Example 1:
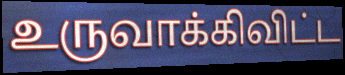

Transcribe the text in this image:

உருவாக்கிவிட்ட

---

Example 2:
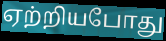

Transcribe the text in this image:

ஏற்றியபோது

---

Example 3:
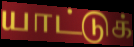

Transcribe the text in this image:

யாட்டுக்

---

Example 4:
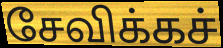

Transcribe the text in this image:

சேவிக்கச்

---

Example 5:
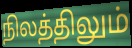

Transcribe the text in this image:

நிலத்திலும்